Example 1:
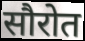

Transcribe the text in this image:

सौरोत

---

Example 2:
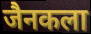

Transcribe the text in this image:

जैनकला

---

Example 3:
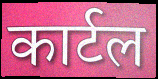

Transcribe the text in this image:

कार्टल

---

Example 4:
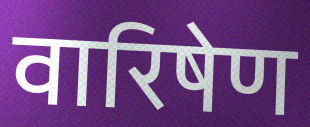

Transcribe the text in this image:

वारिषेण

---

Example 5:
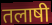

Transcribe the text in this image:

तलाषी